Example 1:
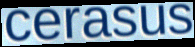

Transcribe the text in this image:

cerasus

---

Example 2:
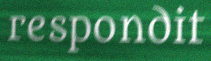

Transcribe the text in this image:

respondit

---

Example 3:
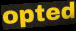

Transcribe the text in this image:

opted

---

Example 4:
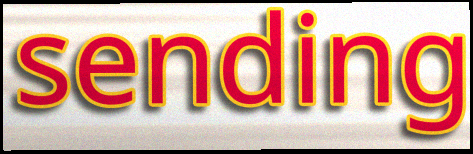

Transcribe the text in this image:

sending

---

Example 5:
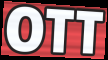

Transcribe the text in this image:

OTT